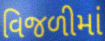
વિજળીમાં